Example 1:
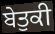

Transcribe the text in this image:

ਬੇਤੁਕੀ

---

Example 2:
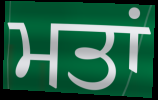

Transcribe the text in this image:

ਮਤਾਂ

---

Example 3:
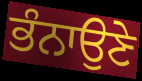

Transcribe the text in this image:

ਭੰਨਾਉਣੇ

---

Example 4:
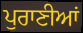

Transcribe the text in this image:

ਪੁਰਾਣੀਆਂ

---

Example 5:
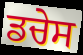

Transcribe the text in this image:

ਡਚੇਸ